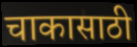
चाकासाठी